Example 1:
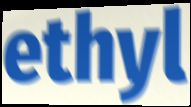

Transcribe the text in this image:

ethyl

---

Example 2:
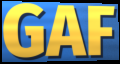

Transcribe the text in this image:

GAF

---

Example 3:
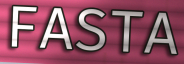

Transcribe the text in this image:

FASTA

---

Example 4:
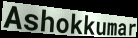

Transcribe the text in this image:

Ashokkumar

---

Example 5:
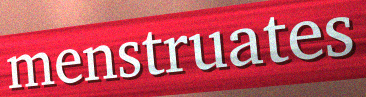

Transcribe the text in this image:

menstruates